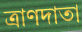
ত্রাণদাতা